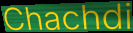
Chachdi